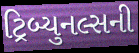
ટ્રિબ્યુનલ્સની